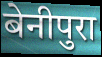
बेनीपुरा